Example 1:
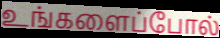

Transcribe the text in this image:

உங்களைப்போல்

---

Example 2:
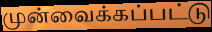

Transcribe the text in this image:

முன்வைக்கப்பட்டு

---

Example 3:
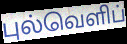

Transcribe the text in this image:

புல்வெளிப்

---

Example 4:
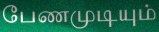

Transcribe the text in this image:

பேணமுடியும்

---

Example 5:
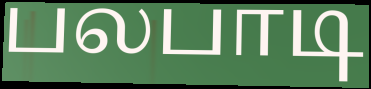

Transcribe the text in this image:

பலபாடி